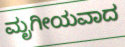
ಮೃಗೀಯವಾದ